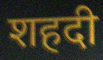
शहदी